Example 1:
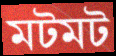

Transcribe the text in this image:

মটমট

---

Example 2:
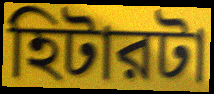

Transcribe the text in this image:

হিটারটা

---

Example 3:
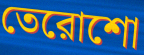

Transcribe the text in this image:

তেরোশো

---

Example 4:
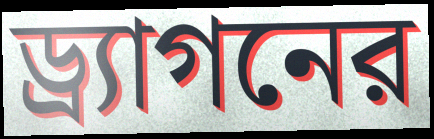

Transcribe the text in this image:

ড্র্যাগনের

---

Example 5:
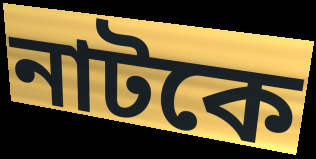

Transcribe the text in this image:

নাটকে